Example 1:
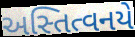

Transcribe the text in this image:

અસ્તિત્વનયે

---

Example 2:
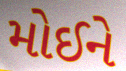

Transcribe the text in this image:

મોઈને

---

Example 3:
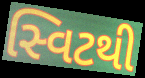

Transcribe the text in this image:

સ્વિટથી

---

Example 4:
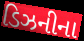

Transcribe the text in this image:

ડિઝનીના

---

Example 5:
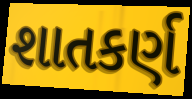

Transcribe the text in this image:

શાતકર્ણ